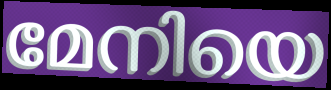
മേനിയെ